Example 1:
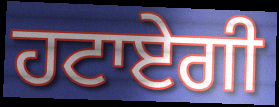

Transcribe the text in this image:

ਹਟਾਏਗੀ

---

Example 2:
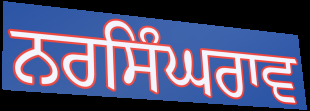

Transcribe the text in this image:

ਨਰਸਿੰਘਰਾਵ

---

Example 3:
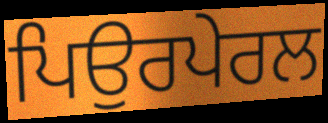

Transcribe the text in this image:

ਪਿਉਰਪੇਰਲ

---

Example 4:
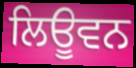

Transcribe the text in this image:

ਲਿਊਵਨ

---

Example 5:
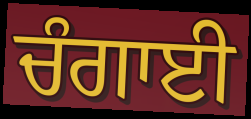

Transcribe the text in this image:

ਚੰਗਾਈ